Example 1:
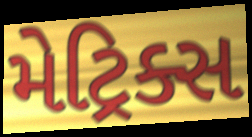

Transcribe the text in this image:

મેટ્રિક્સ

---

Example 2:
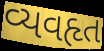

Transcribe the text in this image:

વ્યવહૃત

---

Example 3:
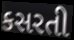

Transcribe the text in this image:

કસરતી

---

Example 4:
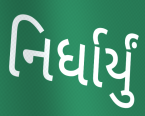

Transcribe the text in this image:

નિર્ધાર્યું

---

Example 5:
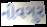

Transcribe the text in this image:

નીવગુર